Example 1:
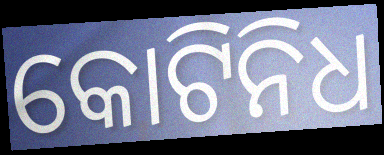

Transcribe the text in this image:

କୋଟିନିଧ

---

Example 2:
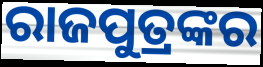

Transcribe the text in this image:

ରାଜପୁତ୍ରଙ୍କର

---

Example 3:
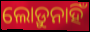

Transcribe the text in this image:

ଲୋଡ଼ୁନାହିଁ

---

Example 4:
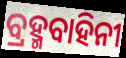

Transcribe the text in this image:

ବ୍ରହ୍ମବାହିନୀ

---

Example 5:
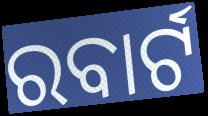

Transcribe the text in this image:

ରବାର୍ଟ